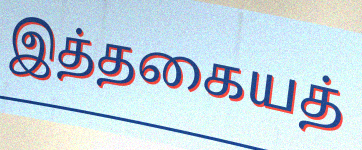
இத்தகையத்